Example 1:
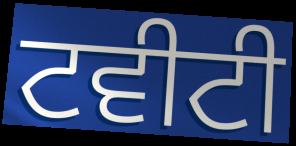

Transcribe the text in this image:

ਟਵੀਟੀ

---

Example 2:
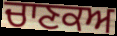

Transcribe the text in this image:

ਚਾਣਕਅ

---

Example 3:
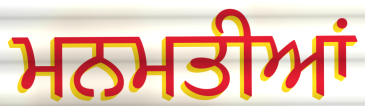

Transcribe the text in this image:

ਮਨਮਤੀਆਂ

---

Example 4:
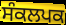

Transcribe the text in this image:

ਸੰਕਲਪਕ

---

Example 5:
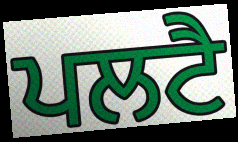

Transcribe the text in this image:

ਪਲਟੈ